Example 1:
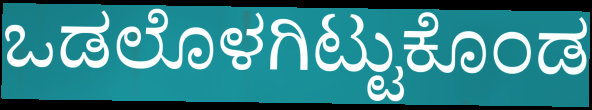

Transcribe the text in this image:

ಒಡಲೊಳಗಿಟ್ಟುಕೊಂಡ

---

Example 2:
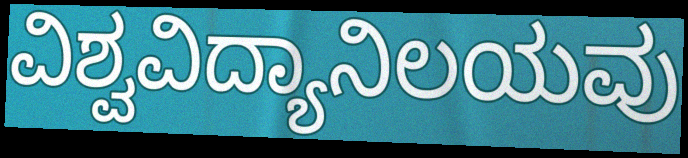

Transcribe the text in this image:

ವಿಶ್ವವಿದ್ಯಾನಿಲಯವು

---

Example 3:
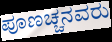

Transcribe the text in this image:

ಪೂಣಚ್ಚನವರು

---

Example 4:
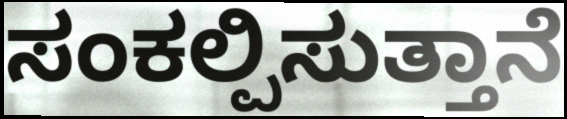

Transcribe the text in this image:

ಸಂಕಲ್ಪಿಸುತ್ತಾನೆ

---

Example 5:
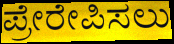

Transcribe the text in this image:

ಪ್ರೇರೇಪಿಸಲು